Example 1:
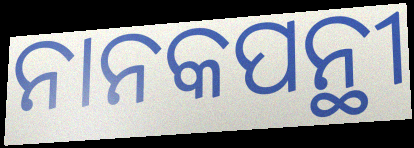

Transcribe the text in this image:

ନାନକପନ୍ଥୀ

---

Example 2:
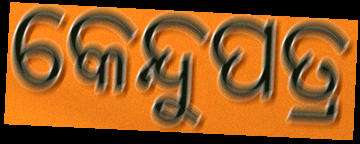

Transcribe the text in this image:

କେନ୍ଦୁପତ୍ର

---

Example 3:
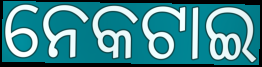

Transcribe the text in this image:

ନେକଟାଇ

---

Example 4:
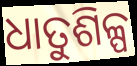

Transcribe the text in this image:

ଧାତୁଶିଳ୍ପ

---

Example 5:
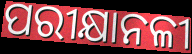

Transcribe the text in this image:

ପରୀକ୍ଷାନଳୀ